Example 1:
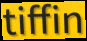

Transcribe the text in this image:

tiffin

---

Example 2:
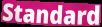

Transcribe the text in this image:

Standard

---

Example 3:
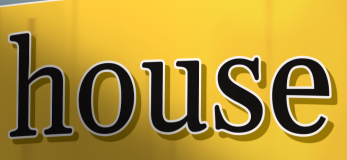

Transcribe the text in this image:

house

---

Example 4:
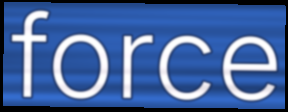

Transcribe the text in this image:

force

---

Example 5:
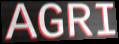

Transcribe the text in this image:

AGRI